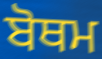
ਬੋਥਮ